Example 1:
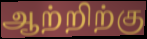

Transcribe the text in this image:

ஆற்றிற்கு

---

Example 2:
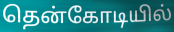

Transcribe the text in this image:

தென்கோடியில்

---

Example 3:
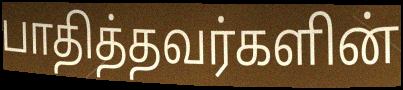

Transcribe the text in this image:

பாதித்தவர்களின்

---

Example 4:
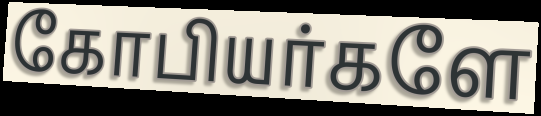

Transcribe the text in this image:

கோபியர்களே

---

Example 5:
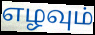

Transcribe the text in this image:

எழவும்